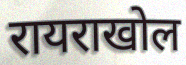
रायराखोल